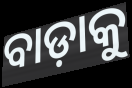
ବାଡ଼ାକୁ